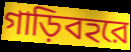
গাড়িবহরে